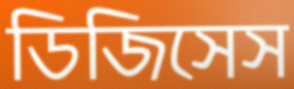
ডিজিসেস